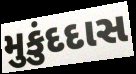
મુકુંદદાસ